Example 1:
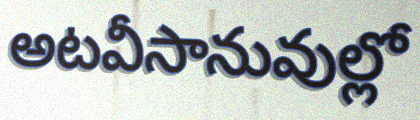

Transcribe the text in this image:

అటవీసానువుల్లో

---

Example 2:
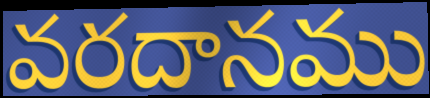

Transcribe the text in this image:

వరదానము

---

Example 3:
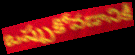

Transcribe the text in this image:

ఒప్పుకోవడానికీ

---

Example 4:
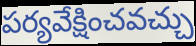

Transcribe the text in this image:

పర్యవేక్షించవచ్చు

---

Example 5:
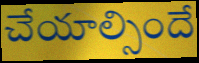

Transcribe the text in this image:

చేయాల్సిందే